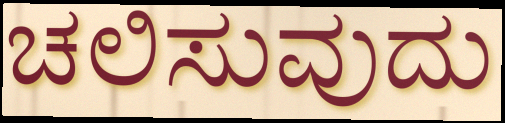
ಚಲಿಸುವುದು